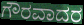
ಗೌರವಾದರ